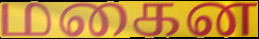
மகைன